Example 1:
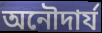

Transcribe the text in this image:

অনৌদার্য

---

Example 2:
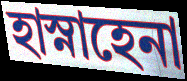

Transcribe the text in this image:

হাস্নাহেনা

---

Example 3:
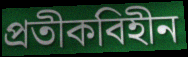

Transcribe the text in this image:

প্রতীকবিহীন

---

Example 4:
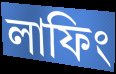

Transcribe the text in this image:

লাফিং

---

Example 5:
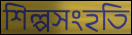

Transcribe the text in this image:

শিল্পসংহতি